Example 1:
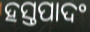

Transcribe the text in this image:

ହସ୍ତପାଦଂ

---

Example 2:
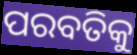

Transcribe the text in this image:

ପରବତିକୁ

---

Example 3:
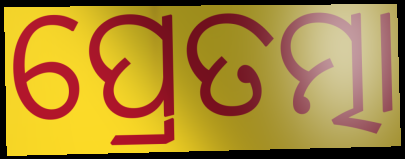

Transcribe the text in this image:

ପ୍ରେତତ୍ମା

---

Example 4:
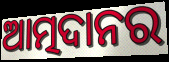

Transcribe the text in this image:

ଆତ୍ମଦାନର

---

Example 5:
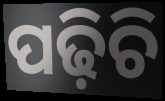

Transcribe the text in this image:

ପଢ଼ିଚି